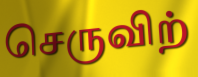
செருவிற்